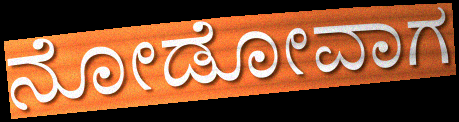
ನೋಡೋವಾಗ